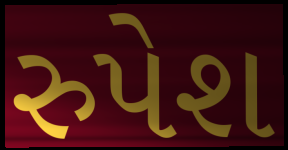
રુપેશ